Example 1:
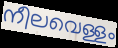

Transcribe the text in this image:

നീലവെള്ളം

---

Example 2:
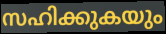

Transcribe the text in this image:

സഹിക്കുകയും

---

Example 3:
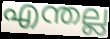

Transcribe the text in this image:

എന്തല്ല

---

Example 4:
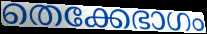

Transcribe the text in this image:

തെക്കേഭാഗം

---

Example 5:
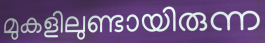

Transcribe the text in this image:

മുകളിലുണ്ടായിരുന്ന